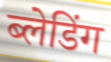
ब्लेडिंग